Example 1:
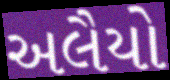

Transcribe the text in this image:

અલૈયો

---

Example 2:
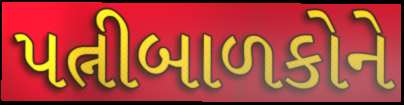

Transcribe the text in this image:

પત્નીબાળકોને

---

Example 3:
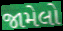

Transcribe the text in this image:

જામેલો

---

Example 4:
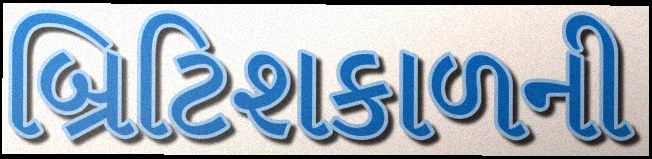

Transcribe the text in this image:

બ્રિટિશકાળની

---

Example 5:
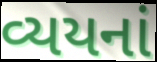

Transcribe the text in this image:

વ્યયનાં